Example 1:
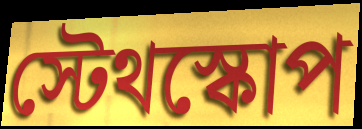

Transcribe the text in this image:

স্টেথস্কোপ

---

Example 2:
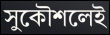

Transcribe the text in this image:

সুকৌশলেই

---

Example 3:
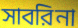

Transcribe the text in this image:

সাবরিনা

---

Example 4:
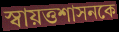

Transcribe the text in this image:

স্বায়ত্তশাসনকে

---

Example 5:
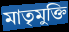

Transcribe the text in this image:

মাতৃমুক্তি